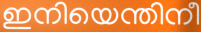
ഇനിയെന്തിനീ